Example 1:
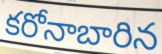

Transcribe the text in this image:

కరోనాబారిన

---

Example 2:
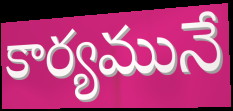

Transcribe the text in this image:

కార్యమునే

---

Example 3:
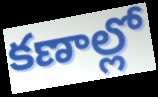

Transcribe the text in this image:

కణాల్లో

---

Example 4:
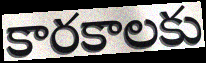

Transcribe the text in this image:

కారకాలకు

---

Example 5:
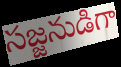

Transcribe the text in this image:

సజ్జనుడిగా